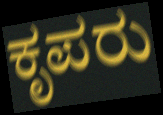
ಕೃಪರು